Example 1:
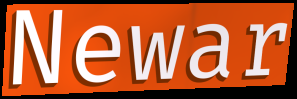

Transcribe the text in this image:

Newar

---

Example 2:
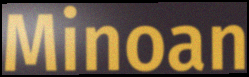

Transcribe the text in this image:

Minoan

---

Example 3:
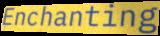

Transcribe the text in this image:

Enchanting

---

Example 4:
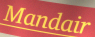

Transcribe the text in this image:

Mandair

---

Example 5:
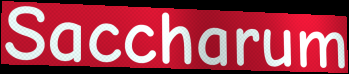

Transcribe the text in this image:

Saccharum